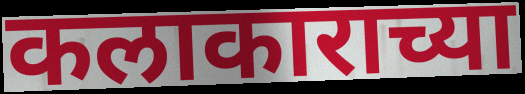
कलाकाराच्या